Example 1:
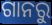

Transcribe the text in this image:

ଗାନରୁ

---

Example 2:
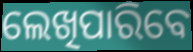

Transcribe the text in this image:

ଲେଖିପାରିବେ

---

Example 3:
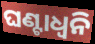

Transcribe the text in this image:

ଘଣ୍ଟାଧ୍ୱନି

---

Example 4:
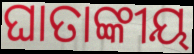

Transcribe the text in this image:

ଘାତାଙ୍କୀୟ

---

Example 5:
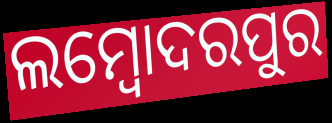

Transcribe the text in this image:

ଲମ୍ବୋଦରପୁର